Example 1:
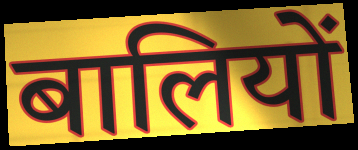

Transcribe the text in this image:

बालियों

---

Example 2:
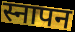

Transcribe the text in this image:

स्नापन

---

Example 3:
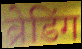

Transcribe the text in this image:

ब्रेडिंग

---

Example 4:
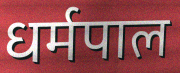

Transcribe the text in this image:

धर्मपाल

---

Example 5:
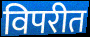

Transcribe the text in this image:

विपरीत